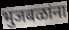
भुजबळांना